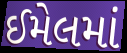
ઈમેલમાં